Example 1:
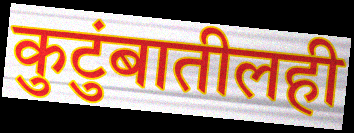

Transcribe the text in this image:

कुटुंबातीलही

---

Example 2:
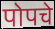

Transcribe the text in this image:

पोपचे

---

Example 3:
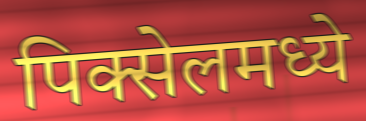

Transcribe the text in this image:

पिक्सेलमध्ये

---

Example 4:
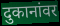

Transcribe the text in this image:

दुकानांवर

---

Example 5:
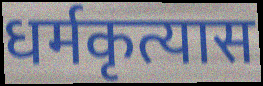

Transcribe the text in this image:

धर्मकृत्यास